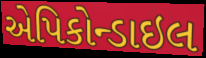
એપિકોન્ડાઇલ